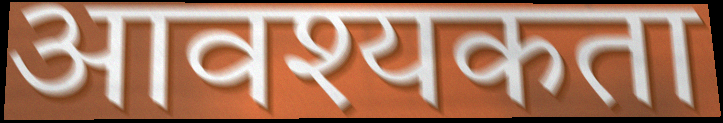
आवश्‍यकता